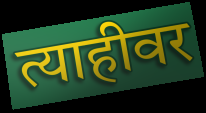
त्याहीवर